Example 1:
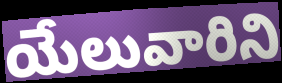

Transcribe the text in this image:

యేలువారిని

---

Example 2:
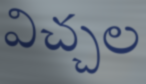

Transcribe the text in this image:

విచ్చల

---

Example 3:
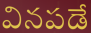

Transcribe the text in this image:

వినపడే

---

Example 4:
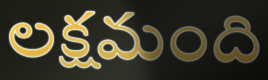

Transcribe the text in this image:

లక్షమంది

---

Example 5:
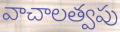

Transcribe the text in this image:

వాచాలత్వపు